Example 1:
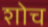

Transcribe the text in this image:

शोच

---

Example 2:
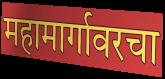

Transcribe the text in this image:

महामार्गावरचा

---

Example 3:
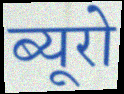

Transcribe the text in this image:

ब्यूरो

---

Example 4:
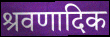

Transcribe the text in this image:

श्रवणादिक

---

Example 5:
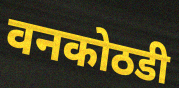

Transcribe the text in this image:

वनकोठडी